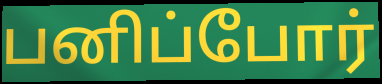
பனிப்போர்